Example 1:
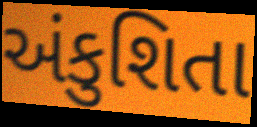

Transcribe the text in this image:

અંકુશિતા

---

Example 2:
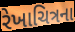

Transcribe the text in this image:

રેખાચિત્રના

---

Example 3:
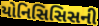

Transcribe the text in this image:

યોનિસિસિસની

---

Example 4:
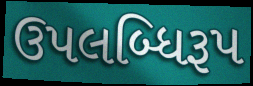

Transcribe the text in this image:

ઉપલબ્ધિરૂપ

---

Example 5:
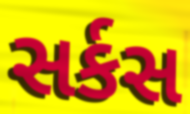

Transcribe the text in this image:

સર્કસ